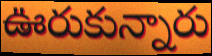
ఊరుకున్నారు